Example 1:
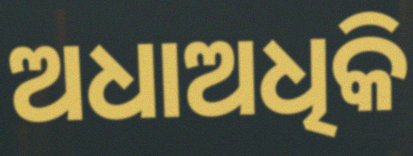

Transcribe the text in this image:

ଅଧାଅଧିକି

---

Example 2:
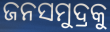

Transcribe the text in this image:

ଜନସମୁଦ୍ରକୁ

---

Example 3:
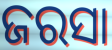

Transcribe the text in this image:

ଜରସା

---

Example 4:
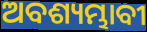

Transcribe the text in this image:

ଅବଶ୍ୟମ୍ଭାବୀ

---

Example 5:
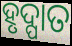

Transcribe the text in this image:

ହୃଦ୍ପାତ